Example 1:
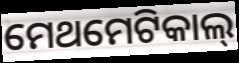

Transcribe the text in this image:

ମେଥମେଟିକାଲ୍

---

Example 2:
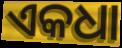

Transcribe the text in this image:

ଏକଧା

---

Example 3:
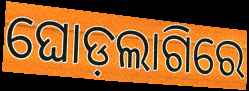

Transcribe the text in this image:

ଘୋଡ଼ଲାଗିରେ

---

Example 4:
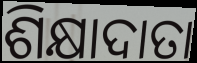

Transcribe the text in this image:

ଶିକ୍ଷାଦାତା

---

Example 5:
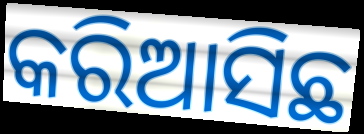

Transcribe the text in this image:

କରିଆସିଛ